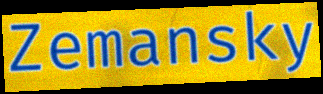
Zemansky